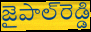
జైపాల్‌రెడ్డి